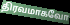
திரவமாகவோ